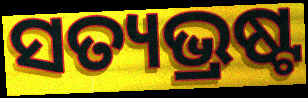
ସତ୍ୟଭ୍ରଷ୍ଟ